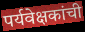
पर्यवेक्षकांची